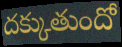
దక్కుతుందో